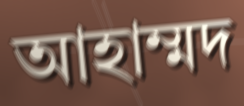
আহাম্মদ